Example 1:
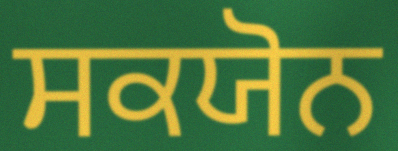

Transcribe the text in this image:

ਸਕਯੋਨ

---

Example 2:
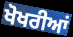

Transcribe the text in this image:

ਖੋਖਰੀਆਂ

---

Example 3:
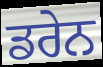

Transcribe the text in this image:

ਡਰੇਨ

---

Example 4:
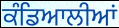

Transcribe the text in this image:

ਕੰਡਿਆਲੀਆਂ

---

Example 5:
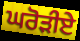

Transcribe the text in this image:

ਘਰੋੜੀਏ